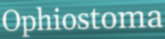
Ophiostoma